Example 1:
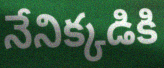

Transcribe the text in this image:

నేనిక్కడికి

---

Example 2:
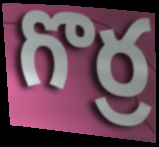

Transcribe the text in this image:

గొర్ర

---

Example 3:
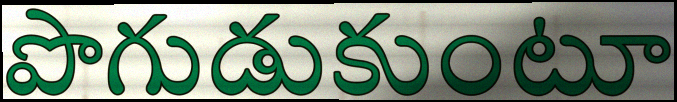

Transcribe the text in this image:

పొగుడుకుంటూ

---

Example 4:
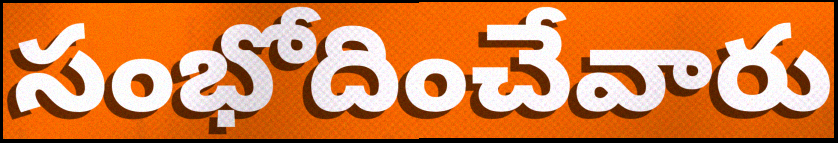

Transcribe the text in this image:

సంభోదించేవారు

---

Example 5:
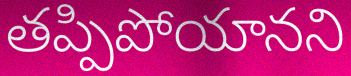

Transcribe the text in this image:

తప్పిపోయానని